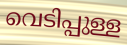
വെടിപ്പുള്ള